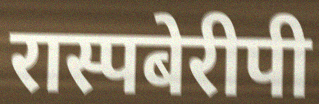
रास्पबेरीपी